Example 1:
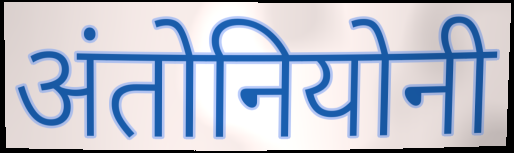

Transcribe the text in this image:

अंतोनियोनी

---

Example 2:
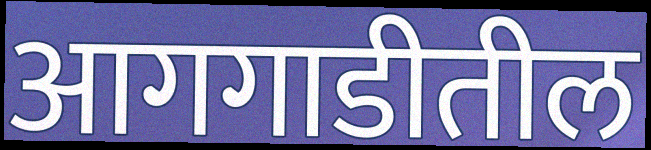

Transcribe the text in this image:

आगगाडीतील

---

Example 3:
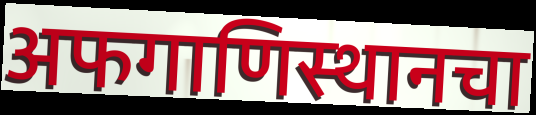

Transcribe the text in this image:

अफगाणिस्थानचा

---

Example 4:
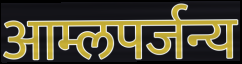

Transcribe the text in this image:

आम्लपर्जन्य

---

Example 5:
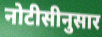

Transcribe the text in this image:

नोटीसीनुसार